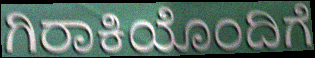
ಗಿರಾಕಿಯೊಂದಿಗೆ